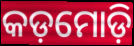
କଡ଼ମୋଡ଼ି